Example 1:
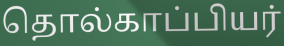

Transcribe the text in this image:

தொல்காப்பியர்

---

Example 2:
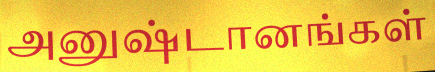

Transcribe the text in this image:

அனுஷ்டானங்கள்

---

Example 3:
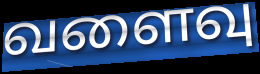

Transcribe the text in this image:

வளைவு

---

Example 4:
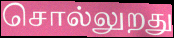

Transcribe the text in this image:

சொல்லுறது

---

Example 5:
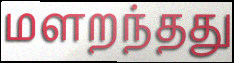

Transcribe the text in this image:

மளறந்தது